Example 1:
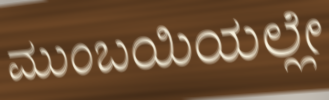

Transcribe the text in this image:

ಮುಂಬಯಿಯಲ್ಲೇ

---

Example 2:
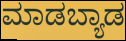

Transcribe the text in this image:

ಮಾಡಬ್ಯಾಡ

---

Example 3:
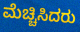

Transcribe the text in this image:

ಮೆಚ್ಚಿಸಿದರು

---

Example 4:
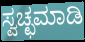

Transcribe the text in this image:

ಸ್ವಚ್ಛಮಾಡಿ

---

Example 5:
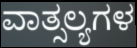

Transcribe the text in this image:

ವಾತ್ಸಲ್ಯಗಳ